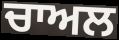
ਚਾਅਲ